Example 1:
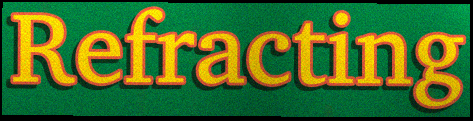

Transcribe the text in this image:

Refracting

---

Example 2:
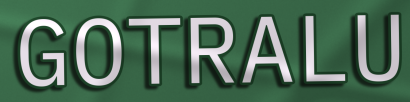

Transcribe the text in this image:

GOTRALU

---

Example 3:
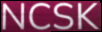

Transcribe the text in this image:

NCSK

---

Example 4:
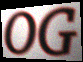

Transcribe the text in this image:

OG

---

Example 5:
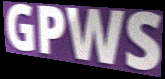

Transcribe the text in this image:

GPWS